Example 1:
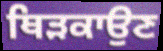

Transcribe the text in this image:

ਥਿੜਕਾਉਣ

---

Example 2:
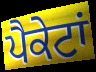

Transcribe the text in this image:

ਪੈਕੇਟਾਂ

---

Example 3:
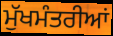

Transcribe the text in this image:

ਮੁੱਖਮੰਤਰੀਆਂ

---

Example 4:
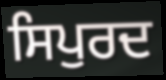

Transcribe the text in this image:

ਸਿਪੁਰਦ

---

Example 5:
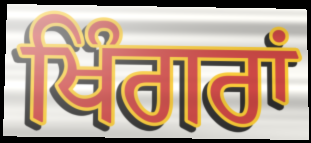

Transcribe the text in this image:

ਖਿੰਗਰਾਂ